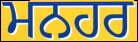
ਮਨਹਰ